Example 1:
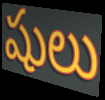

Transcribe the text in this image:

షులు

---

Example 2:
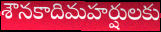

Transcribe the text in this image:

శౌనకాదిమహర్షులకు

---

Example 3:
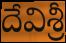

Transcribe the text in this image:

దేవిశ్రీ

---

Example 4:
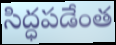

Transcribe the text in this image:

సిద్ధపడేంత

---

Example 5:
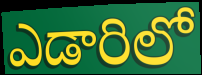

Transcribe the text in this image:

ఎడారిలో